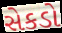
સેકડો